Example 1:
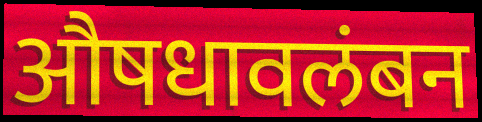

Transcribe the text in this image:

औषधावलंबन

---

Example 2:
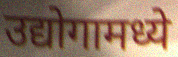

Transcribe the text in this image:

उद्योगामध्ये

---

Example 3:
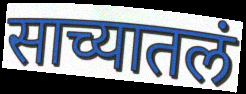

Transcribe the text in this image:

साच्यातलं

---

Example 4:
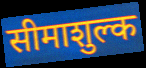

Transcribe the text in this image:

सीमाशुल्क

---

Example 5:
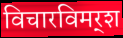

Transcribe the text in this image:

विचारविमर्श